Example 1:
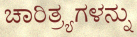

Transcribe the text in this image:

ಚಾರಿತ್ರ್ಯಗಳನ್ನು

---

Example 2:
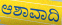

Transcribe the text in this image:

ಆಶಾವಾದಿ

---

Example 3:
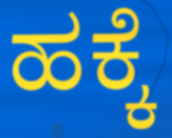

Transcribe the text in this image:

ಹಕ್ಕೆ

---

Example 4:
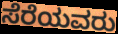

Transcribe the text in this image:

ಸೆರೆಯವರು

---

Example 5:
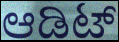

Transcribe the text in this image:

ಆಡಿಟ್